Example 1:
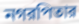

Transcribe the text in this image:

নগরপিতার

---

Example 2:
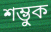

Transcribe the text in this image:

শম্ভুক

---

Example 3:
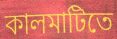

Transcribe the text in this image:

কালমাটিতে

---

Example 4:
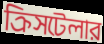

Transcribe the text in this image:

ক্রিসটেলার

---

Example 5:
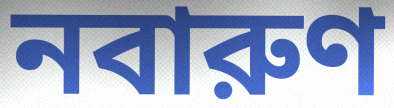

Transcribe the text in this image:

নবারুণ